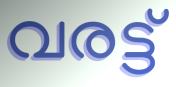
വരട്ട്